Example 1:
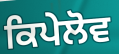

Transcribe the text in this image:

ਕਿਪੇਲੋਵ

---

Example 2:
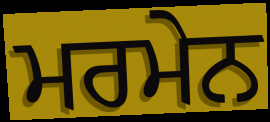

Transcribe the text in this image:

ਮਰਮੇਨ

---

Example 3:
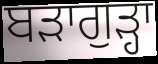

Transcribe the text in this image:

ਬੜਾਗੁੜ੍ਹਾ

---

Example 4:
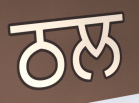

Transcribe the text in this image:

ਠਲ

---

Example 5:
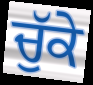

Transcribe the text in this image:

ਚੁੱਕੇ